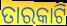
ତାରକାଟି